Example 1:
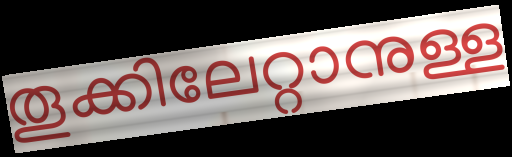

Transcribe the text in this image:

തൂക്കിലേറ്റാനുള്ള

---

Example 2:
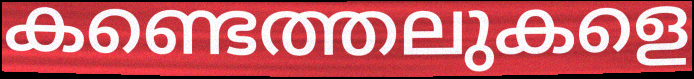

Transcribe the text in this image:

കണ്ടെത്തലുകളെ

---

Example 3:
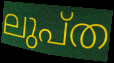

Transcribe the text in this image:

ലുപ്ത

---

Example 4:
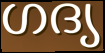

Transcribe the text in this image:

ഗദ്യ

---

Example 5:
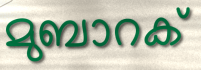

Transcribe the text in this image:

മുബാറക്